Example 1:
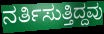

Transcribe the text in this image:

ನರ್ತಿಸುತ್ತಿದ್ದವು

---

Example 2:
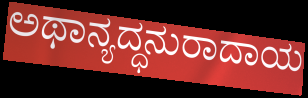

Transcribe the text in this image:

ಅಥಾನ್ಯದ್ಧನುರಾದಾಯ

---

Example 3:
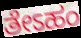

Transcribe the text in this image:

ತೇಽಹಂ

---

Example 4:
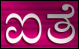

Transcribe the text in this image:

ಐತೆ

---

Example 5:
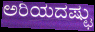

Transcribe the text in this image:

ಅರಿಯದಷ್ಟು